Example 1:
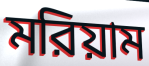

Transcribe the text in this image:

মরিয়াম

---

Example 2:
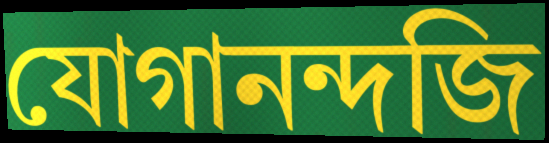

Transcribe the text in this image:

যোগানন্দজি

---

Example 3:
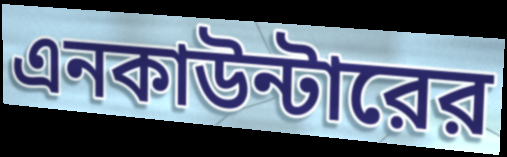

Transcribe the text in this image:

এনকাউন্টারের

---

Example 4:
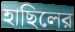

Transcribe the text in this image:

হাছিলের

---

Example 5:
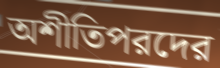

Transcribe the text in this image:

অশীতিপরদের